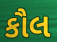
કૌલ